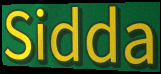
Sidda